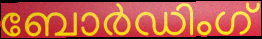
ബോർഡിംഗ്